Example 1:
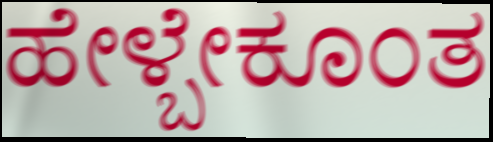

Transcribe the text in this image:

ಹೇಳ್ಬೇಕೂಂತ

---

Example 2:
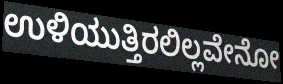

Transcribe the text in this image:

ಉಳಿಯುತ್ತಿರಲಿಲ್ಲವೇನೋ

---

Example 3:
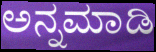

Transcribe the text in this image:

ಅನ್ನಮಾಡಿ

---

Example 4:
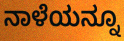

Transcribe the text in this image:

ನಾಳೆಯನ್ನೂ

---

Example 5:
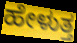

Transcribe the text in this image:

ಹೇಳುತ್ತ